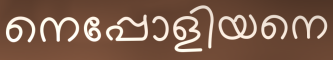
നെപ്പോളിയനെ